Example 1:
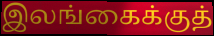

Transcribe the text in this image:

இலங்கைக்குத்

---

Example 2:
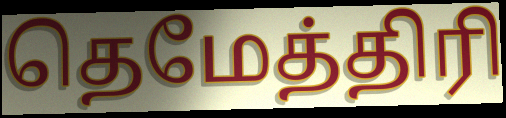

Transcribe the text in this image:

தெமேத்திரி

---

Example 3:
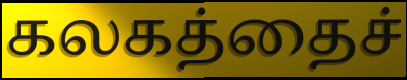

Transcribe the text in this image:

கலகத்தைச்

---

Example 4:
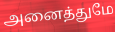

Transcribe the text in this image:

அனைத்துமே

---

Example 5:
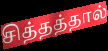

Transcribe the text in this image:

சித்தத்தால்